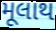
મૂલાથ